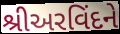
શ્રીઅરવિંદને